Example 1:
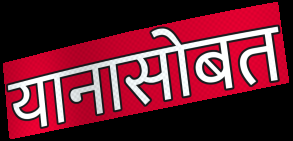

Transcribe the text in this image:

यानासोबत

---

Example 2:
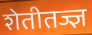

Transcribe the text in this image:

शेतीतज्ज्ञ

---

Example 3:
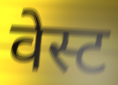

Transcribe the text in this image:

वेस्ट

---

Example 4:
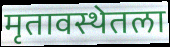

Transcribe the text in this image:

मृतावस्थेतला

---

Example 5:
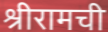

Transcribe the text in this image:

श्रीरामची